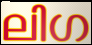
ലിഗ